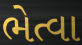
ભેત્વા